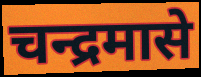
चन्द्रमासे